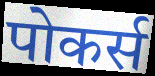
पोकर्स